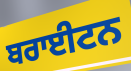
ਬਰਾਈਟਨ